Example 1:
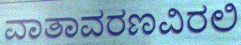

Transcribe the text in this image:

ವಾತಾವರಣವಿರಲಿ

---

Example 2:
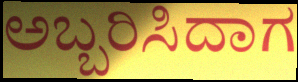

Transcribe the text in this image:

ಅಬ್ಬರಿಸಿದಾಗ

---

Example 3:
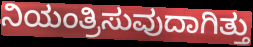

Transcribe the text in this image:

ನಿಯಂತ್ರಿಸುವುದಾಗಿತ್ತು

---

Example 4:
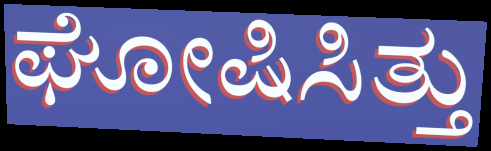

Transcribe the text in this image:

ಘೋಷಿಸಿತ್ತು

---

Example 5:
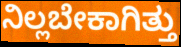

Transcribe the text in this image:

ನಿಲ್ಲಬೇಕಾಗಿತ್ತು